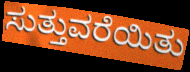
ಸುತ್ತುವರೆಯಿತು